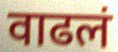
वाढलं